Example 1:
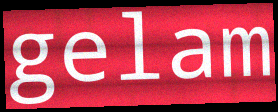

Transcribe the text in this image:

gelam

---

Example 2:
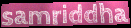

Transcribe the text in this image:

samriddha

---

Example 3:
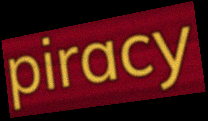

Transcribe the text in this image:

piracy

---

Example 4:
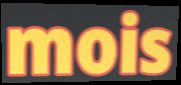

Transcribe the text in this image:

mois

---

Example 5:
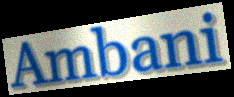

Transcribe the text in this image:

Ambani